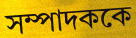
সম্পাদককে